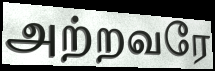
அற்றவரே